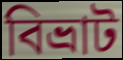
বিভ্রাট